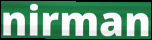
nirman